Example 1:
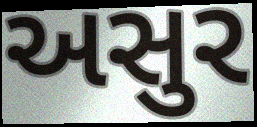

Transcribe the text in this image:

અસુર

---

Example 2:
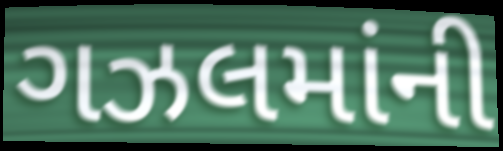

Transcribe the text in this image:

ગઝલમાંની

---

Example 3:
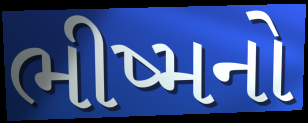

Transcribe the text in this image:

ભીષ્મનો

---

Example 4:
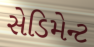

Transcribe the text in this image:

સેડિમેન્ટ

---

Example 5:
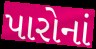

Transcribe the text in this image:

પારોનાં